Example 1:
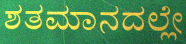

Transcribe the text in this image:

ಶತಮಾನದಲ್ಲೇ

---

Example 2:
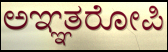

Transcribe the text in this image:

ಅಞ್ಞತರೋಪಿ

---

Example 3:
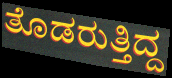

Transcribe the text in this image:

ತೊಡರುತ್ತಿದ್ದ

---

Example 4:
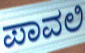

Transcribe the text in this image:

ಪಾವಲಿ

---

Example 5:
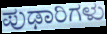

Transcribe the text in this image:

ಪುಢಾರಿಗಳು